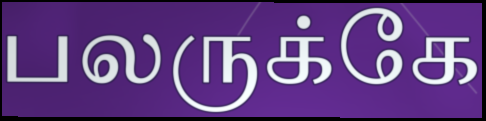
பலருக்கே